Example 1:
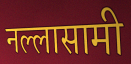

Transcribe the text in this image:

नल्लासामी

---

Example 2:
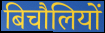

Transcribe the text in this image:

बिचौलियों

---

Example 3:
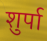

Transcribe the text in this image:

शुर्पा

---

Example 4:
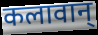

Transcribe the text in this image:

कलावान्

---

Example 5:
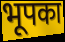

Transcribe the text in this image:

भूपका